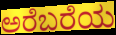
ಅರೆಬರೆಯ